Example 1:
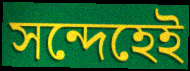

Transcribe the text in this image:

সন্দেহেই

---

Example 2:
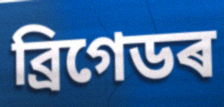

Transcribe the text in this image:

ব্ৰিগেডৰ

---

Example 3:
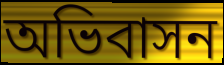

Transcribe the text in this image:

অভিবাসন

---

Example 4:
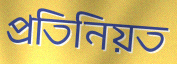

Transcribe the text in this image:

প্ৰতিনিয়ত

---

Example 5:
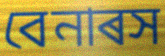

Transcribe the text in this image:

বেনাৰস